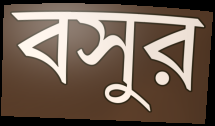
বসুর